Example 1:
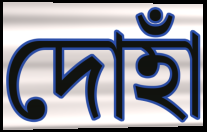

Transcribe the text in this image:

দোহাঁ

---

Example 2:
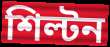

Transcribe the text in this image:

শিল্টন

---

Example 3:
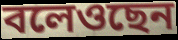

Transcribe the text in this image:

বলেওছেন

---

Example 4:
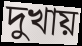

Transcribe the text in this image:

দুখায়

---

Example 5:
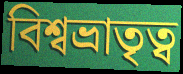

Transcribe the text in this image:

বিশ্বভ্রাতৃত্ব